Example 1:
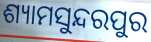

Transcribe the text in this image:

ଶ୍ୟାମସୁନ୍ଦରପୁର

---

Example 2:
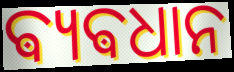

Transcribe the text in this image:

ଵ୍ୟଵଧାନ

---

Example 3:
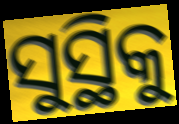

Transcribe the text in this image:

ସୁସ୍ଥିକୁ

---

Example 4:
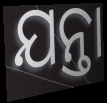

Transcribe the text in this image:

ଯନ୍ତା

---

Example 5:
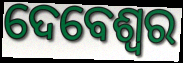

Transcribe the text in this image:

ଦେବେଶ୍ୱର